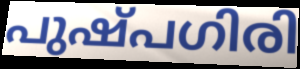
പുഷ്പഗിരി